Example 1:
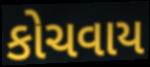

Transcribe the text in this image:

કોચવાય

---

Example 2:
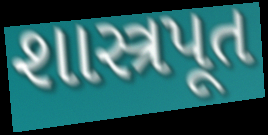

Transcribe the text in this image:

શાસ્ત્રપૂત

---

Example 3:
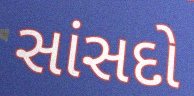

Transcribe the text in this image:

સાંસદો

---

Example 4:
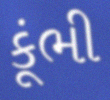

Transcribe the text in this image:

કૂંભી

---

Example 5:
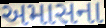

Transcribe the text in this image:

અમાસના